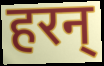
हरन्